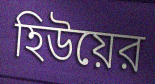
হিউয়ের